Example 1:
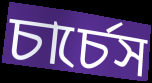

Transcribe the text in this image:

চার্চেস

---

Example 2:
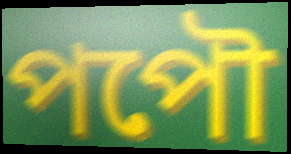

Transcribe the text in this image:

পপৌ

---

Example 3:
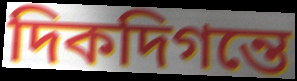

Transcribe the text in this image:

দিকদিগন্তে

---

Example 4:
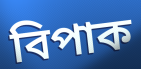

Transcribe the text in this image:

বিপাক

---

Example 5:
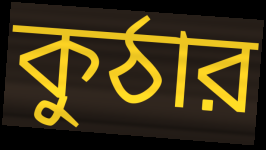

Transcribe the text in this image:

কুঠার